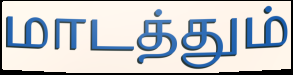
மாடத்தும்